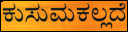
ಕುಸುಮಕಲ್ಲದೆ